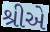
શ્રીએ